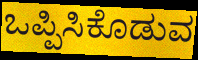
ಒಪ್ಪಿಸಿಕೊಡುವ